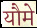
यौमे